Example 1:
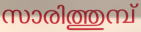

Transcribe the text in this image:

സാരിത്തുമ്പ്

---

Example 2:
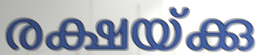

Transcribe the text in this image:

രക്ഷയ്‌ക്കു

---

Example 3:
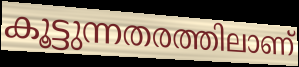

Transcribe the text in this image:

കൂട്ടുന്നതരത്തിലാണ്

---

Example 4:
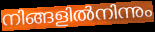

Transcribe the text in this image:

നിങ്ങളിൽനിന്നും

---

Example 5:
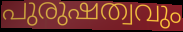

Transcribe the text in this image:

പുരുഷത്വവും